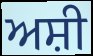
ਅਸ਼ੀ